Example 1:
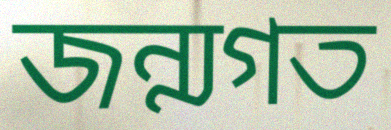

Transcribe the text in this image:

জন্মগত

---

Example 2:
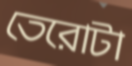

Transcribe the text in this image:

তেরোটা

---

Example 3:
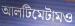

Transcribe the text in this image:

আলটিমেটামও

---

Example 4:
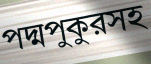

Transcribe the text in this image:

পদ্মপুকুরসহ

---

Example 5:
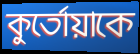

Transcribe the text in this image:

কুর্তোয়াকে